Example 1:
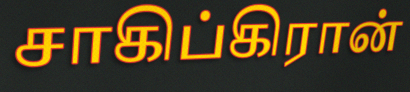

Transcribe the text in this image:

சாகிப்கிரான்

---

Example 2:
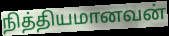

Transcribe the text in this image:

நித்தியமானவன்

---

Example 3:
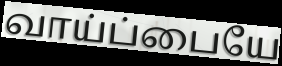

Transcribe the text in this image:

வாய்ப்பையே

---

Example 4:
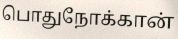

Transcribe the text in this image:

பொதுநோக்கான்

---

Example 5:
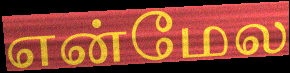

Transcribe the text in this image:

என்மேல